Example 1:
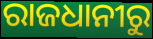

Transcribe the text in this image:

ରାଜଧାନୀରୁ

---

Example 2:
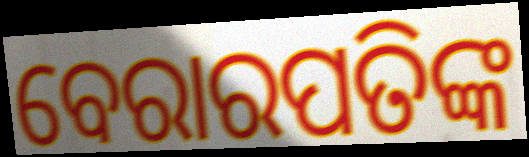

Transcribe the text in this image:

ବେରାରପତିଙ୍କ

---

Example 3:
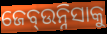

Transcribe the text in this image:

ଜେବ୍ଉନ୍ନିସାକୁ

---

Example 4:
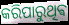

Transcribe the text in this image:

କରିପାରୁଥିଵ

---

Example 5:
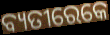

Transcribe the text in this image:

ବ୍ୟତୀରେକେ